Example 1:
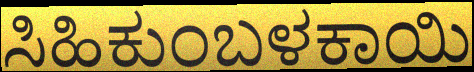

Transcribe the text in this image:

ಸಿಹಿಕುಂಬಳಕಾಯಿ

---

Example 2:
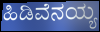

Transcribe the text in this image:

ಹಿಡಿವೆನಯ್ಯ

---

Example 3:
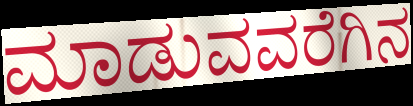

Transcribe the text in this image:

ಮಾಡುವವರೆಗಿನ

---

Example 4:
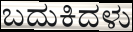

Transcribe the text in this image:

ಬದುಕಿದಳು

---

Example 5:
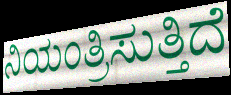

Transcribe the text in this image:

ನಿಯಂತ್ರಿಸುತ್ತಿದೆ